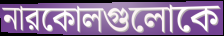
নারকোলগুলোকে